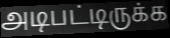
அடிபட்டிருக்க